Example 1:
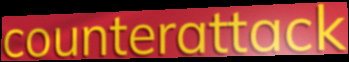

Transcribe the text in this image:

counterattack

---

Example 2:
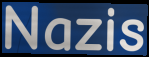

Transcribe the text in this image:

Nazis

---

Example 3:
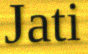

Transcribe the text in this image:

Jati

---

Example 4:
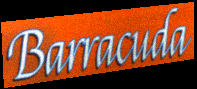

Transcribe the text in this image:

Barracuda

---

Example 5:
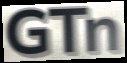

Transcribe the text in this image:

GTn